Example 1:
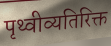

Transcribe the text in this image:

पृथ्वीव्यतिरिक्त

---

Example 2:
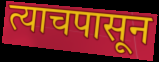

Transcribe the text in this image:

त्याचपासून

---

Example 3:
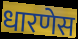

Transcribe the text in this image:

धारणेस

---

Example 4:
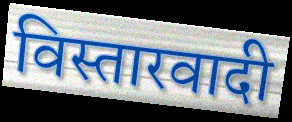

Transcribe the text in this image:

विस्तारवादी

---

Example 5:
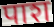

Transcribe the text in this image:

पाश